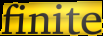
finite